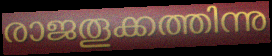
രാജതൂക്കത്തിന്നു